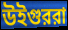
উইগুররা